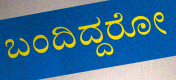
ಬಂದಿದ್ದರೋ